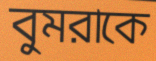
বুমরাকে